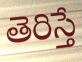
తెరిస్తే